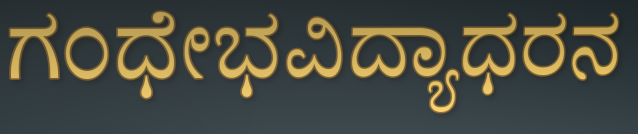
ಗಂಧೇಭವಿದ್ಯಾಧರನ